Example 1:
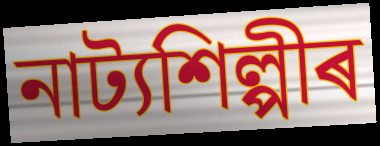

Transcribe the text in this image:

নাট্যশিল্পীৰ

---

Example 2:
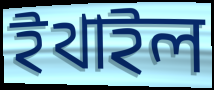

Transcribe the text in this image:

ইথাইল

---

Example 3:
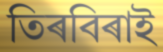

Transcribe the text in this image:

তিৰবিৰাই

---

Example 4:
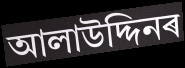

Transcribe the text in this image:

আলাউদ্দিনৰ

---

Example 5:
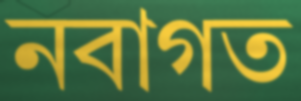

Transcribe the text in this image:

নবাগত